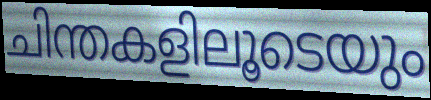
ചിന്തകളിലൂടെയും